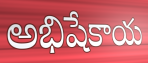
అభిషేకాయ